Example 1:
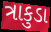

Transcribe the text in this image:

ત્રાકુડા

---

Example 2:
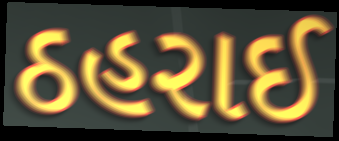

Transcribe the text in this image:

ઠહરાઈ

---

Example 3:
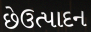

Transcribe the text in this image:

છેઉત્પાદન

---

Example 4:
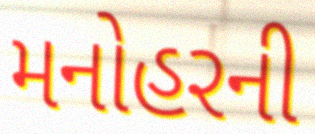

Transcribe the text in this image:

મનોહરની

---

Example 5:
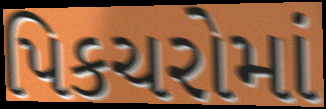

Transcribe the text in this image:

પિકચરોમાં